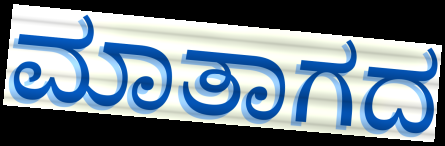
ಮಾತಾಗದ